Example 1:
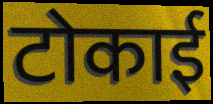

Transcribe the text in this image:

टोकाई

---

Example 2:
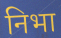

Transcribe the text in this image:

निभा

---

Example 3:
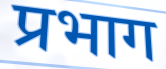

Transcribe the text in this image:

प्रभाग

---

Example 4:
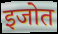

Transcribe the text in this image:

इजोत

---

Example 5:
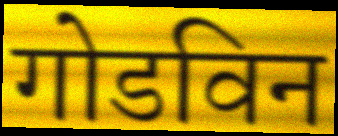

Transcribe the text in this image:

गोडविन